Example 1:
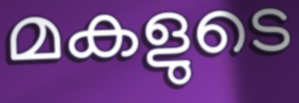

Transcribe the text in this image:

മകളുടെ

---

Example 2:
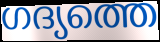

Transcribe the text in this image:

ഗദ്യത്തെ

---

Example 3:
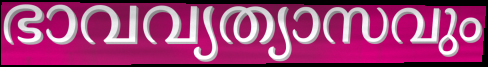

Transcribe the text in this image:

ഭാവവ്യത്യാസവും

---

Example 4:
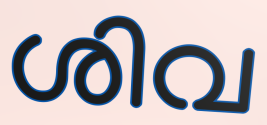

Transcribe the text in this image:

ശിവ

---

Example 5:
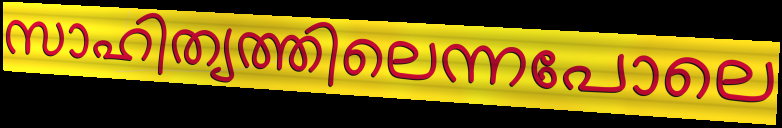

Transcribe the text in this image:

സാഹിത്യത്തിലെന്നപോലെ